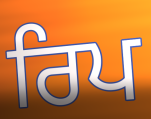
ਰਿਪ